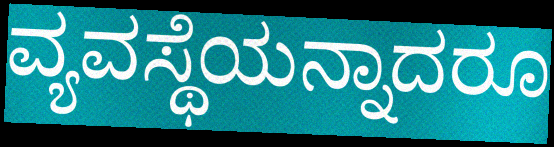
ವ್ಯವಸ್ಥೆಯನ್ನಾದರೂ